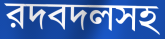
রদবদলসহ